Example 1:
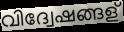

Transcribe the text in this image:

വിദ്വേഷങ്ങള്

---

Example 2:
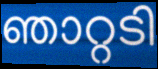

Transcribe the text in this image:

ഞാറ്റടി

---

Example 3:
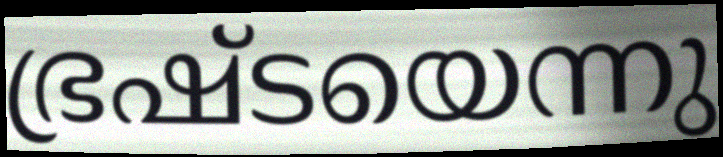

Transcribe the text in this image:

ഭ്രഷ്ടയെന്നു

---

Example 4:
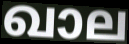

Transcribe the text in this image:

ഖാല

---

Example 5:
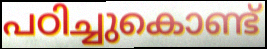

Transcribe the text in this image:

പഠിച്ചുകൊണ്ട്